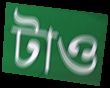
টাও